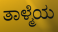
ತಾಳ್ಮೆಯ